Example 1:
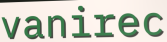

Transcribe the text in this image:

vanirec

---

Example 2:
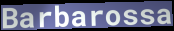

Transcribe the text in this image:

Barbarossa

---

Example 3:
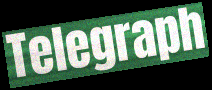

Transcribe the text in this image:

Telegraph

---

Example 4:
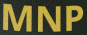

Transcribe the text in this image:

MNP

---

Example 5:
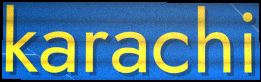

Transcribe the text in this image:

karachi